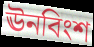
ঊনবিংশ